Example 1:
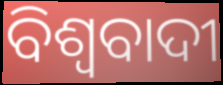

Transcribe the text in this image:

ବିଶ୍ଵବାଦୀ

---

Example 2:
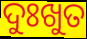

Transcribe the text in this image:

ଦୁଃଖୁତ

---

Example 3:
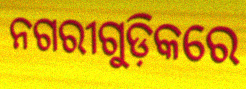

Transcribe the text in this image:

ନଗରୀଗୁଡ଼ିକରେ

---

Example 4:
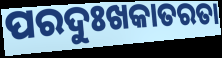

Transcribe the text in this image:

ପରଦୁଃଖକାତରତା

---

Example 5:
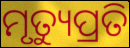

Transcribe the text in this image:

ମୃତ୍ୟୁପ୍ରତି